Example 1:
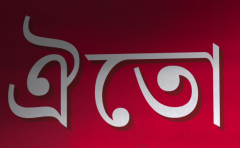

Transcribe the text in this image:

ঐতো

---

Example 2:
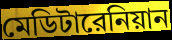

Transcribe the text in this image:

মেডিটারেনিয়ান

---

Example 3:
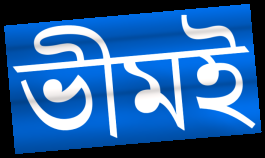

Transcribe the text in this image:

ভীমই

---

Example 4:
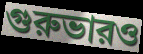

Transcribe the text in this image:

গুরুভারও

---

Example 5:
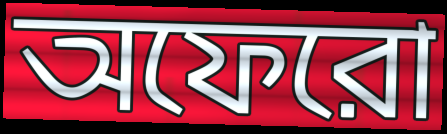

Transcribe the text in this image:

অফেরো